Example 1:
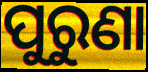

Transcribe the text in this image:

ପୁରୁଣା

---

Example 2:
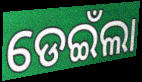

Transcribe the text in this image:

ଡେଇଁଲା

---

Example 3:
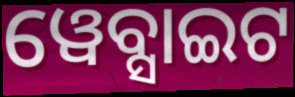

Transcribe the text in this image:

ୱେବ୍ସାଇଟ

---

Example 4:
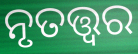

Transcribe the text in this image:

ନୃତତ୍ତ୍ଵର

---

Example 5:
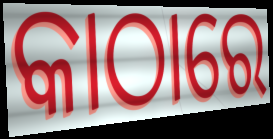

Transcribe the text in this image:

କାଠାରେ